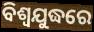
ବିଶ୍ବଯୁଦ୍ଧରେ